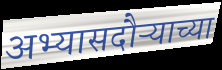
अभ्यासदौऱ्याच्या